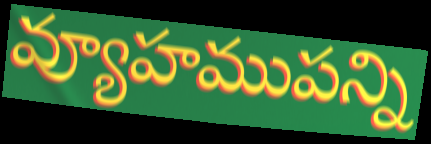
వ్యూహముపన్ని